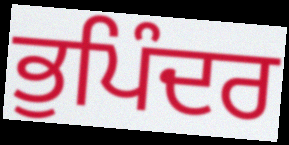
ਭੁਪਿੰਦਰ